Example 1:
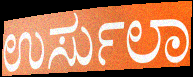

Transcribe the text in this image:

ಉರ್ಸುಲಾ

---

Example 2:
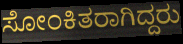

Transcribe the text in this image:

ಸೋಂಕಿತರಾಗಿದ್ದರು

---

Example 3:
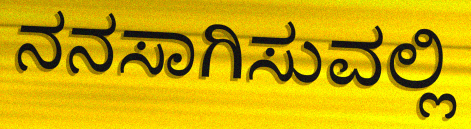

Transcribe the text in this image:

ನನಸಾಗಿಸುವಲ್ಲಿ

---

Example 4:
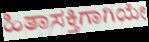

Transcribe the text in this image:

ಹಿತಾಸಕ್ತಿಗಾಗಿಯೇ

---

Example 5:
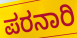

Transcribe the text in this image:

ಪರನಾರಿ